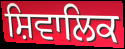
ਸ਼ਿਵਾਲਿਕ